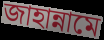
জাহান্নামে